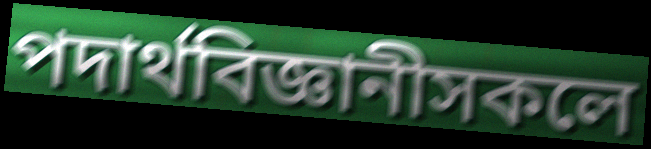
পদাৰ্থবিজ্ঞানীসকলে